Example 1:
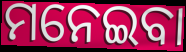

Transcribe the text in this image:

ମନେଇବା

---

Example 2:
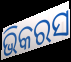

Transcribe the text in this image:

ଭିକରସ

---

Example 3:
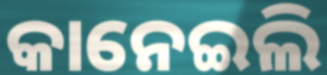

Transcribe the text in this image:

କାନେଇଲି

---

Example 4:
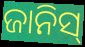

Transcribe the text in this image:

ଜାନିସ୍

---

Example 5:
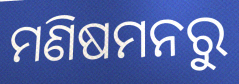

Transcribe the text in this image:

ମଣିଷମନରୁ